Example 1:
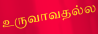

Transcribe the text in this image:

உருவாவதல்ல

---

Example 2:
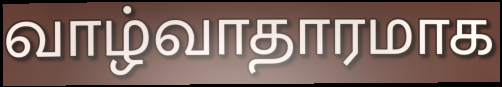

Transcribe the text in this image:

வாழ்வாதாரமாக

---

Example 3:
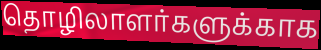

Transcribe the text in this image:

தொழிலாளர்களுக்காக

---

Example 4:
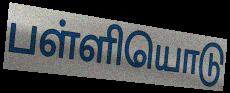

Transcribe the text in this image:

பள்ளியொடு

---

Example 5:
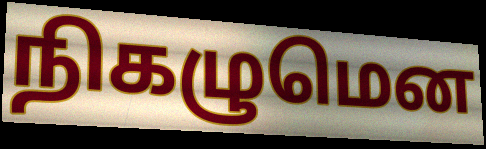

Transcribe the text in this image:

நிகழுமென